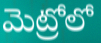
మెట్రోలో